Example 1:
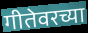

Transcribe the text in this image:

गीतेवरच्या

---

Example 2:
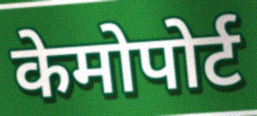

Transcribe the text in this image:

केमोपोर्ट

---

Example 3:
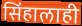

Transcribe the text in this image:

सिंहालाही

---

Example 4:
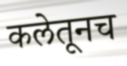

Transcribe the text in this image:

कलेतूनच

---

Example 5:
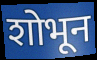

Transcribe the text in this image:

शोभून